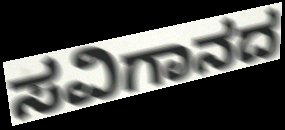
ಸವಿಗಾನದ